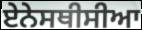
ਏਨੇਸਥੀਸੀਆ